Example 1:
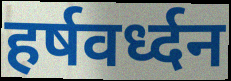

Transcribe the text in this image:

हर्षवर्ध्दन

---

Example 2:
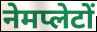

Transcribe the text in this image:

नेमप्लेटों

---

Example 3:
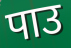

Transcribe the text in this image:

पाउ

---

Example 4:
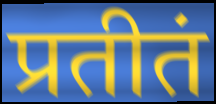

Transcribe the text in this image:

प्रतीतं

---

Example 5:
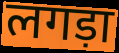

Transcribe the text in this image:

लगड़ा